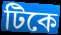
টিকে